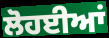
ਲੋਹਈਆਂ